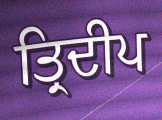
ਤ੍ਰਿਦੀਪ